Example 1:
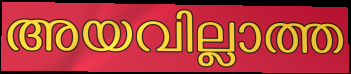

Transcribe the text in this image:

അയവില്ലാത്ത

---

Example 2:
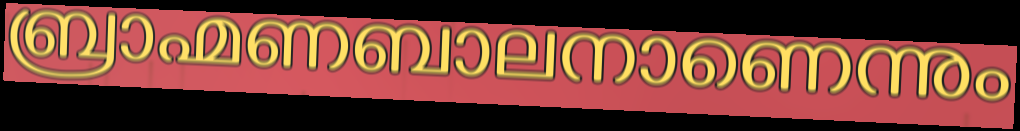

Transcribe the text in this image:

ബ്രാഹ്മണബാലനാണെന്നും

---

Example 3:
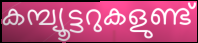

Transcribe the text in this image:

കമ്പ്യൂട്ടറുകളുണ്ട്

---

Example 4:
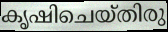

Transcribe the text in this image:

കൃഷിചെയ്തിരു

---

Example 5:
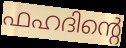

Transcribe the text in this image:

ഫഹദിന്റെ